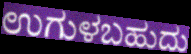
ಉಗುಳಬಹುದು